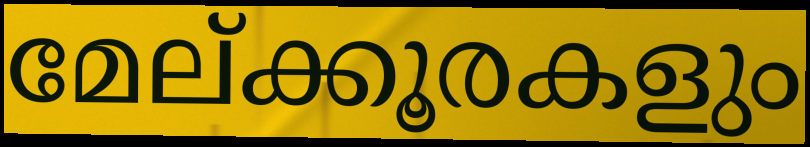
മേല്ക്കൂരകളും